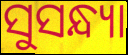
ସୁସନ୍ଧ୍ୟା